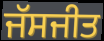
ਜੱਸਜੀਤ